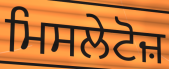
ਮਿਸਲੇਟੋਜ਼